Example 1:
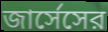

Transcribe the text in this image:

জার্সেসের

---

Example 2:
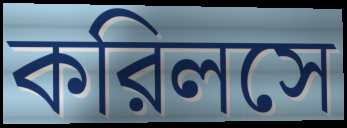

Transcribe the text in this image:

করিলসে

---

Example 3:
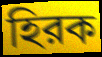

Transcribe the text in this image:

হিরক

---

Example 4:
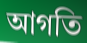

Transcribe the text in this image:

আগতি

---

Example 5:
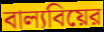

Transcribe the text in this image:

বাল্যবিয়ের